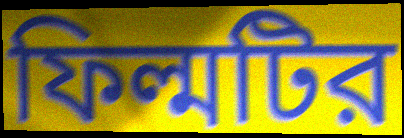
ফিল্মটির